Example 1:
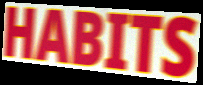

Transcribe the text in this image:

HABITS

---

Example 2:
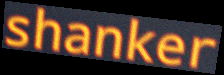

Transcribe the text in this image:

shanker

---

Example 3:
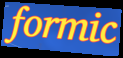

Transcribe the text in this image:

formic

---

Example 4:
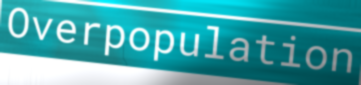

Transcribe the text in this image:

Overpopulation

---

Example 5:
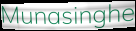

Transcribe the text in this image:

Munasinghe